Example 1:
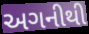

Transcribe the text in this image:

અગનીથી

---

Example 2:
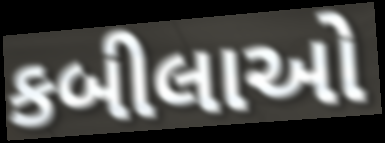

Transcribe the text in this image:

કબીલાઓ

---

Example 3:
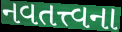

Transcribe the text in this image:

નવતત્ત્વના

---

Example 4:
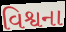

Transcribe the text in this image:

વિશ્વના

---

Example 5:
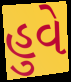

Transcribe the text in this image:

હુવે